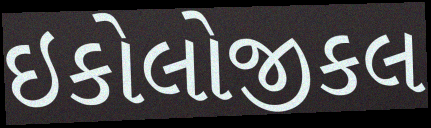
ઇકોલોજીકલ